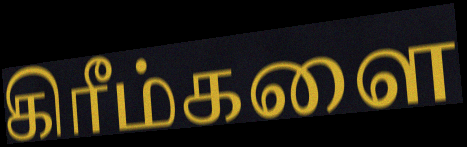
கிரீம்களை